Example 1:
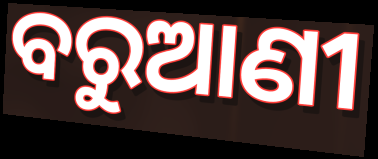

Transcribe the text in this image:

ବରୁଆଣୀ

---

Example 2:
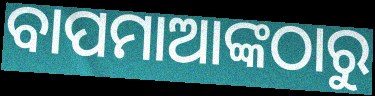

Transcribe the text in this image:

ବାପମାଆଙ୍କଠାରୁ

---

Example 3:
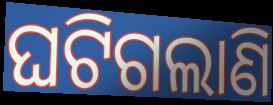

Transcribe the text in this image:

ଘଟିଗଲାଣି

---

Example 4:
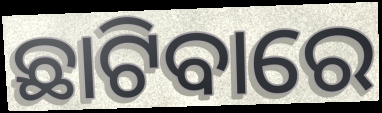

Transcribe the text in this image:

ଛାଟିବାରେ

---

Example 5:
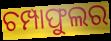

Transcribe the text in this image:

ଚମ୍ପାଫୁଲର